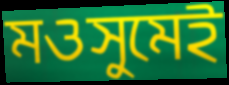
মওসুমেই